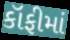
કૉફીમાં